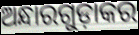
ଅନ୍ଧାରଗୁଡ଼ାକର